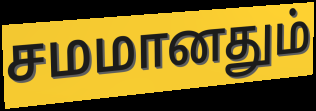
சமமானதும்